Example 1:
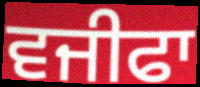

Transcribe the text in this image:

ਵਜੀਫਾ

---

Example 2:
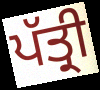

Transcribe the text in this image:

ਪੱਤ੍ਰੀ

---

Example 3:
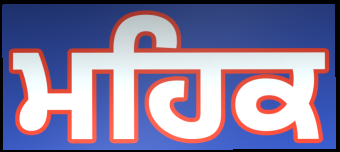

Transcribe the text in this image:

ਮਹਿਕ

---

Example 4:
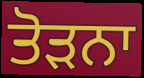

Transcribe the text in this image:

ਤੋੜਨਾ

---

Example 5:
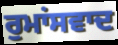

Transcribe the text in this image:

ਰੁਮਾਂਸਵਾਦ